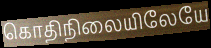
கொதிநிலையிலேயே